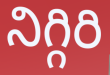
నిగ్గిరి